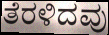
ತೆರಳಿದವು